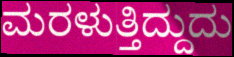
ಮರಳುತ್ತಿದ್ದುದು